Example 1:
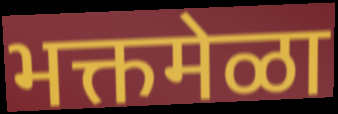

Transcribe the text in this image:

भक्तमेळा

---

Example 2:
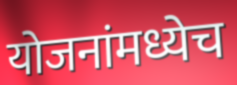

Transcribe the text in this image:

योजनांमध्येच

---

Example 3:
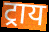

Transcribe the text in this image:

ट्राय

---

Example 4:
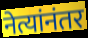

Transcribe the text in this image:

नेत्यांनंतर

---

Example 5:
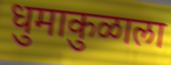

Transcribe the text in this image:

धुमाकुळाला